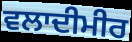
ਵਲਾਦੀਮੀਰ